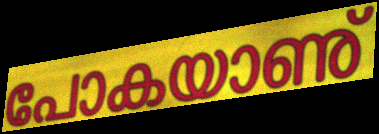
പോകയാണു്